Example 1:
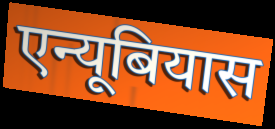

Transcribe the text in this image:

एन्यूबियास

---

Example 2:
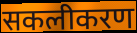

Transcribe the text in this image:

सकलीकरण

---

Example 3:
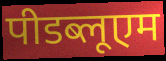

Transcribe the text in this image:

पीडब्लूएम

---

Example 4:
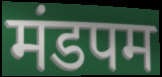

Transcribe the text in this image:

मंडपम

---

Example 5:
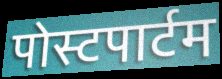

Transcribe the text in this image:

पोस्टपार्टम